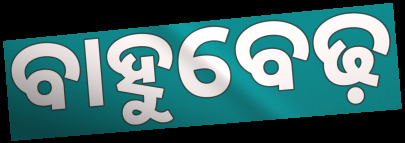
ବାହୁବେଢ଼